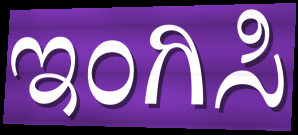
ಇಂಗಿಸಿ